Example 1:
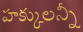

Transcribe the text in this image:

హక్కులన్నీ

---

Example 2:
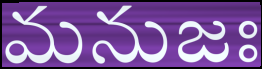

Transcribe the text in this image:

మనుజః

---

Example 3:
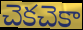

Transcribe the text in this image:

చెకచెకా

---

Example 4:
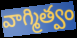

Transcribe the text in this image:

వాగ్మిత్వం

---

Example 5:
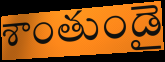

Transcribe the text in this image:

శాంతుండై